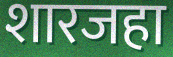
शारजहा